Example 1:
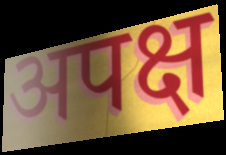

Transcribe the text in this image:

अपक्ष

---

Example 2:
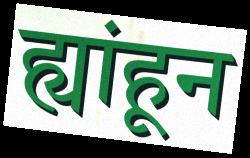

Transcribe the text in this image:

ह्यांहून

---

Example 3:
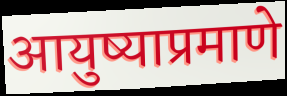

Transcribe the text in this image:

आयुष्याप्रमाणे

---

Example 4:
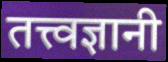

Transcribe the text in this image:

तत्त्वज्ञानी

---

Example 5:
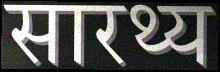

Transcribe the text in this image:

सारथ्य